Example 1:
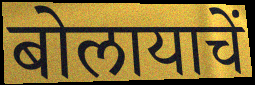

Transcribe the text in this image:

बोलायाचें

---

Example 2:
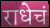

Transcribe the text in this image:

राधेचं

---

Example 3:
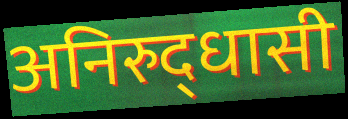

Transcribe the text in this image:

अनिरुद्धासी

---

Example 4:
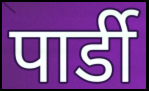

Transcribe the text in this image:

पार्डी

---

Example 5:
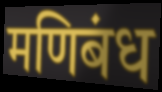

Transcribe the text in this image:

मणिबंध